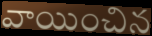
వాయించిన